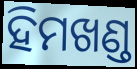
ହିମଖଣ୍ଡ